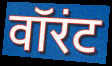
वॉरंट